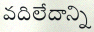
వదిలేదాన్ని